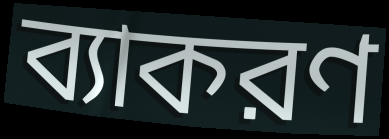
ব্যাকরণ